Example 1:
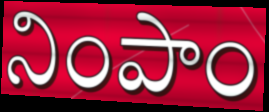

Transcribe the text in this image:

నింపాం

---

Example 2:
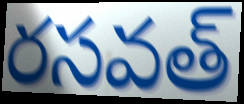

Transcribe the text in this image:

రసవత్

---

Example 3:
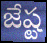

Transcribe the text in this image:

జేష్ట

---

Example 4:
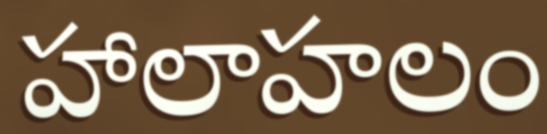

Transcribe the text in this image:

హాలాహలం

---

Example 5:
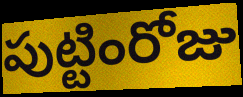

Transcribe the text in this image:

పుట్టింరోజు